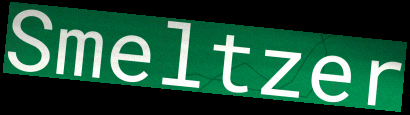
Smeltzer